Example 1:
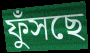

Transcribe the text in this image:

ফুঁসছে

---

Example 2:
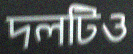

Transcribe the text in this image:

দলটিও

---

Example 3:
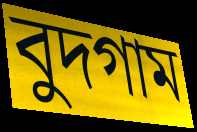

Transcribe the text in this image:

বুদগাম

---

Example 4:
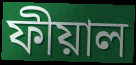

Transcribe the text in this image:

ফীয়াল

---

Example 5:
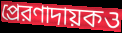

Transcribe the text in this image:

প্রেরণাদায়কও